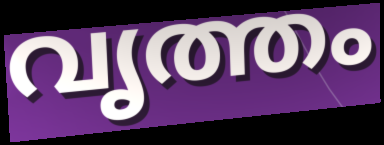
വൃത്തം